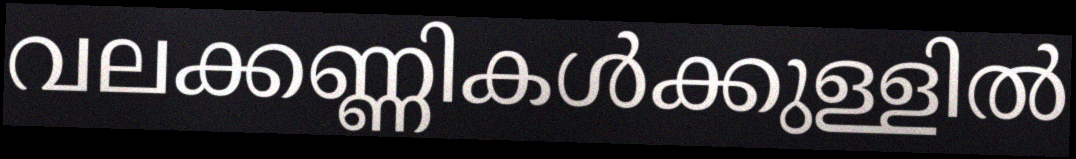
വലക്കണ്ണികൾക്കുള്ളിൽ